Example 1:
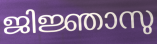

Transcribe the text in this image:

ജിജ്ഞാസു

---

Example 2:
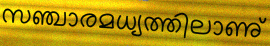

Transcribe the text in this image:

സഞ്ചാരമധ്യത്തിലാണു്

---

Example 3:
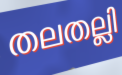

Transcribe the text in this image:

തലതല്ലി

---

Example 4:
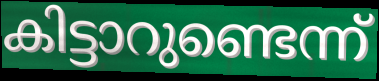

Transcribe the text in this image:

കിട്ടാറുണ്ടെന്ന്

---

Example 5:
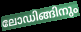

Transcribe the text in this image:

ലോഡിങ്ങിനും